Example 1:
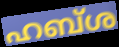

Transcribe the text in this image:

ഹബ്ശ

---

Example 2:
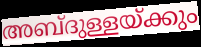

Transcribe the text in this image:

അബ്ദുള്ളയ്ക്കും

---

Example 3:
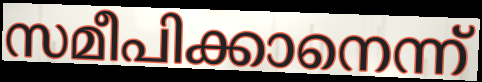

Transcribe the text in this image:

സമീപിക്കാനെന്ന്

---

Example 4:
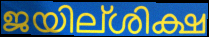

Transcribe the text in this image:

ജയില്ശിക്ഷ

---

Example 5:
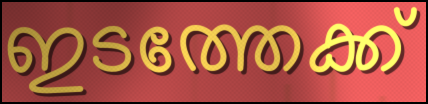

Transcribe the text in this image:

ഇടത്തേക്ക്